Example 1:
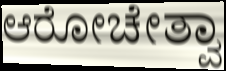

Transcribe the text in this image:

ಆರೋಚೇತ್ವಾ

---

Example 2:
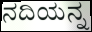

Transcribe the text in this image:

ನದಿಯನ್ನ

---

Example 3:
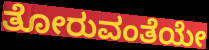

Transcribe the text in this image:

ತೋರುವಂತೆಯೇ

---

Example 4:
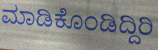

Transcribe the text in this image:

ಮಾಡಿಕೊಂಡಿದ್ದಿರಿ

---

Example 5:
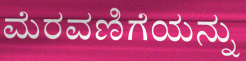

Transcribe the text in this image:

ಮೆರವಣಿಗೆಯನ್ನು